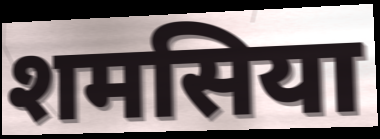
शमसिया